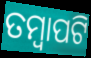
ତମ୍ବାପଟି